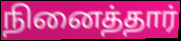
நினைத்தார்